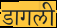
डागली